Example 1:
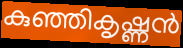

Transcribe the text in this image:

കുഞ്ഞികൃഷ്ണൻ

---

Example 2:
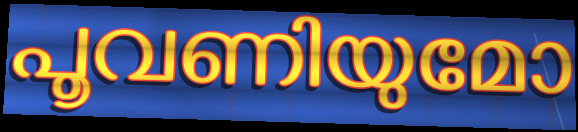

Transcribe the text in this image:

പൂവണിയുമോ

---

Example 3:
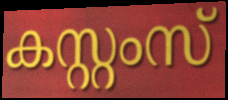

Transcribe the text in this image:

കസ്റ്റംസ്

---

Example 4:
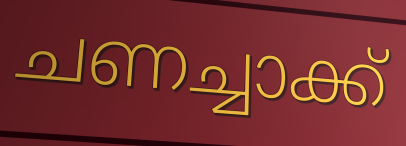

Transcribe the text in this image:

ചണച്ചാക്ക്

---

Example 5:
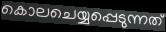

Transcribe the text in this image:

കൊലചെയ്യപ്പെടുന്നത്